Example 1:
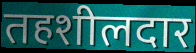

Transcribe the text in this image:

तहशीलदार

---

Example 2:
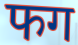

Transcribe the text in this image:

फग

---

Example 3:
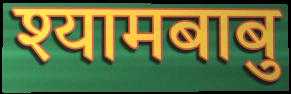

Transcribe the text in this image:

श्यामबाबु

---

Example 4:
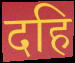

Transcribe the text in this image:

दहि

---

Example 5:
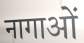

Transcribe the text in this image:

नागाओं